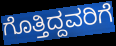
ಗೊತ್ತಿದ್ದವರಿಗೆ